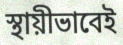
স্থায়ীভাবেই